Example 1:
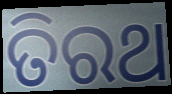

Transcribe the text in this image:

ତିରଥ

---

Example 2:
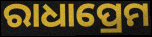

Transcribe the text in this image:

ରାଧାପ୍ରେମ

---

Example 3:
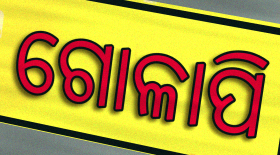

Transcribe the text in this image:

ଗୋଳାପି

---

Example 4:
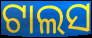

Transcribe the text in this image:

ଟାଲସ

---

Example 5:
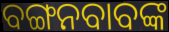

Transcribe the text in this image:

ବଙ୍ଗନବାବଙ୍କ